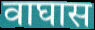
वाघास